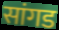
सांगड